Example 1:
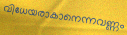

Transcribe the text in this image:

വിധേയരാകാനെന്നവണ്ണം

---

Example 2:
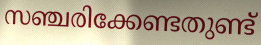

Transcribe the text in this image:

സഞ്ചരിക്കേണ്ടതുണ്ട്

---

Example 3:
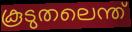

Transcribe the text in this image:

കൂടുതലെന്ത്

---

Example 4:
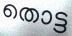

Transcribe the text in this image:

തൊട്ട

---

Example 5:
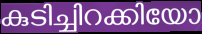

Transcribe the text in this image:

കുടിച്ചിറക്കിയോ